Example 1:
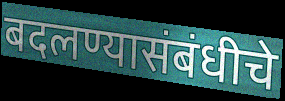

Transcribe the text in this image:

बदलण्यासंबंधीचे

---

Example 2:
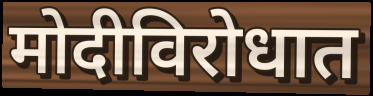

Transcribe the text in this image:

मोदीविरोधात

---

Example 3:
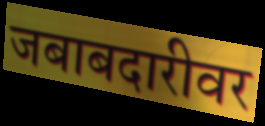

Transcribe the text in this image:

जबाबदारीवर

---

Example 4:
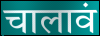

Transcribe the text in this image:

चालावं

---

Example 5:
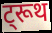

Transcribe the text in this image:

ट्रूथ